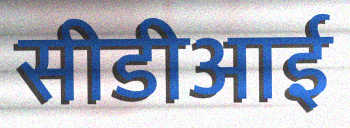
सीडीआई